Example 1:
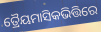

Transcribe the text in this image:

ତ୍ରୈୟମାସିକଭିତ୍ତିରେ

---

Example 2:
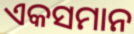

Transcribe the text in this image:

ଏକସମାନ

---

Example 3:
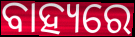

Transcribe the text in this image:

ବାହ୍ୟରେ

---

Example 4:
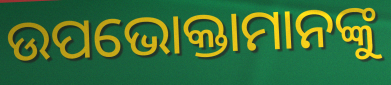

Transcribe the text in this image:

ଉପଭୋକ୍ତାମାନଙ୍କୁ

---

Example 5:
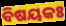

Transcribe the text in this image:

ବିଷୟକଃ